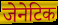
जेनेटिक